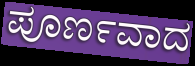
ಪೂರ್ಣವಾದ